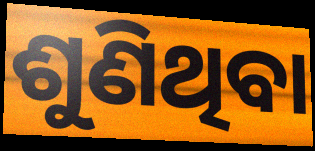
ଶୁଣିଥିବା